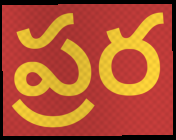
ప్రర